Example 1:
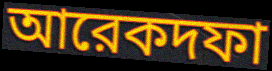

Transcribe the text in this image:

আরেকদফা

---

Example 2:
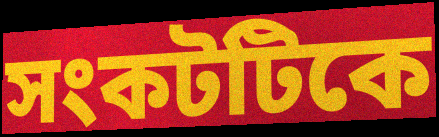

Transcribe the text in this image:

সংকটটিকে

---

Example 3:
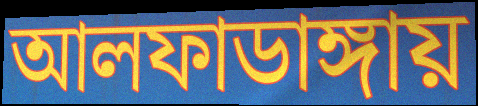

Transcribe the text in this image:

আলফাডাঙ্গায়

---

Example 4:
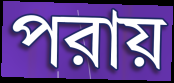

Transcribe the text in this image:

পরায়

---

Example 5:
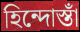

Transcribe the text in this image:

হিন্দোস্তাঁ